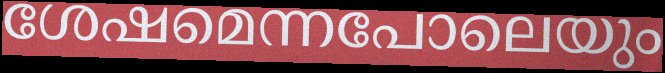
ശേഷമെന്നപോലെയും